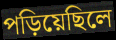
পড়িয়েছিলে